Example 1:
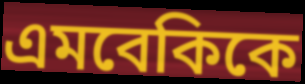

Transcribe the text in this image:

এমবেকিকে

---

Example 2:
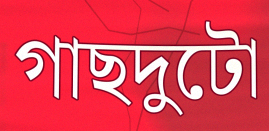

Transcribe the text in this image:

গাছদুটো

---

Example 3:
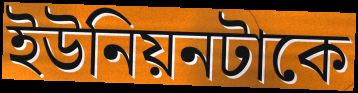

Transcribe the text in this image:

ইউনিয়নটাকে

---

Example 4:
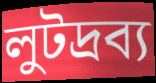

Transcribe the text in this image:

লুটদ্রব্য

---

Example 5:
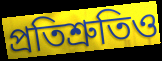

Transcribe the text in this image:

প্রতিশ্রুতিও